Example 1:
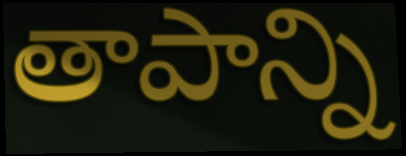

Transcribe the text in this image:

తాపాన్ని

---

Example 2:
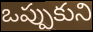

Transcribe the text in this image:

ఒప్పుకుని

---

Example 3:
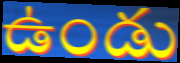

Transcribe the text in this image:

ఉండు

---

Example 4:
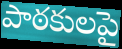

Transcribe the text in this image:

పాఠకులపై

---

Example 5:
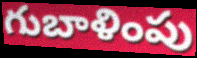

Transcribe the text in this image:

గుబాళింపు